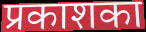
प्रकाशका